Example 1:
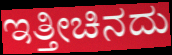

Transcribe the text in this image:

ಇತ್ತೀಚಿನದು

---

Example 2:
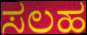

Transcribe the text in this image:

ಸಲಹ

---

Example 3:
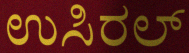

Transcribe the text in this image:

ಉಸಿರಲ್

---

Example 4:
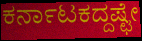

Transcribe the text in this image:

ಕರ್ನಾಟಕದ್ದಷ್ಟೇ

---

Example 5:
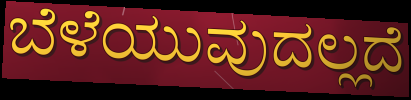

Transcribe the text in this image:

ಬೆಳೆಯುವುದಲ್ಲದೆ